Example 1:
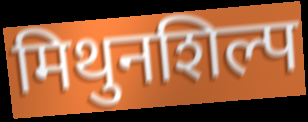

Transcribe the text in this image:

मिथुनशिल्प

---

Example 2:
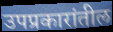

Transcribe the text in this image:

उपप्रकारांतील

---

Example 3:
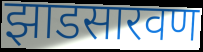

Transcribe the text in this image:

झाडसारवण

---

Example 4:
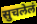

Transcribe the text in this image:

सुचलेलं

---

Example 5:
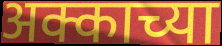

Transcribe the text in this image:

अक्काच्या